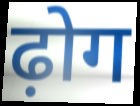
ढ़ोग